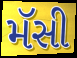
મૅસી